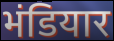
भंडियार